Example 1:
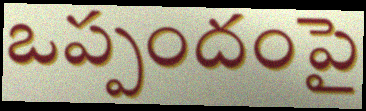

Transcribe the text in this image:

ఒప్పందంపై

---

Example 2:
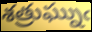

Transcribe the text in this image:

శత్రుఘ్నుఁ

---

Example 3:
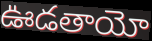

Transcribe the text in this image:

ఊడతాయో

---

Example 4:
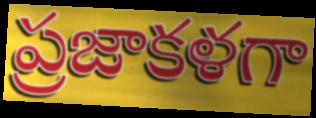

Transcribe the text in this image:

ప్రజాకళగా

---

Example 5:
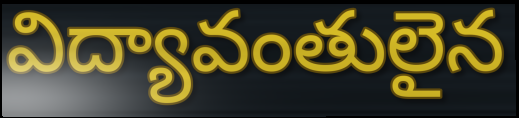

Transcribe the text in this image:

విద్యావంతులైన